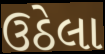
ઉઠેલા